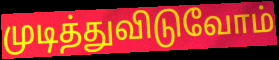
முடித்துவிடுவோம்